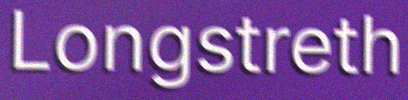
Longstreth